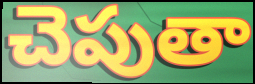
చెపుతా